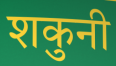
शकुनी